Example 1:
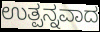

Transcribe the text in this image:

ಉತ್ಪನ್ನವಾದ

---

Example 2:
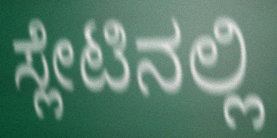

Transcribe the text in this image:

ಸ್ಲೇಟಿನಲ್ಲಿ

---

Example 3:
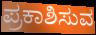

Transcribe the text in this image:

ಪ್ರಕಾಶಿಸುವ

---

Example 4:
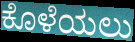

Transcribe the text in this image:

ಕೊಳೆಯಲು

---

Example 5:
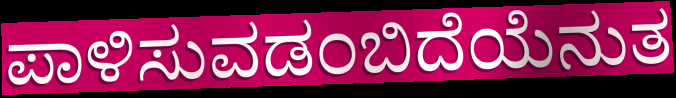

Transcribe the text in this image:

ಪಾಳಿಸುವಡಂಬಿದೆಯೆನುತ